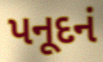
પનૂદનં